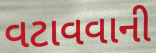
વટાવવાની